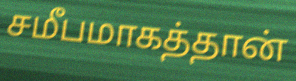
சமீபமாகத்தான்